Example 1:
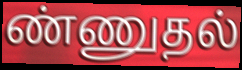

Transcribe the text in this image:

ண்ணுதல்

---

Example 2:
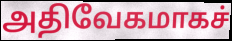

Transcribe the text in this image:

அதிவேகமாகச்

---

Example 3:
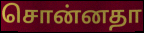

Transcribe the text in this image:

சொன்னதா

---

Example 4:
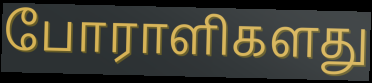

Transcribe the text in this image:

போராளிகளது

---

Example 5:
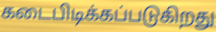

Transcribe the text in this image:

கடைபிடிக்கப்படுகிறது